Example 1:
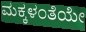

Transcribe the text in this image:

ಮಕ್ಕಳಂತೆಯೇ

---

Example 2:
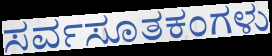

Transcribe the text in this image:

ಸರ್ವಸೂತಕಂಗಳು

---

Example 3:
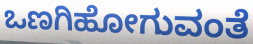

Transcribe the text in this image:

ಒಣಗಿಹೋಗುವಂತೆ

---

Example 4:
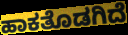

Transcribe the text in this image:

ಹಾಕತೊಡಗಿದೆ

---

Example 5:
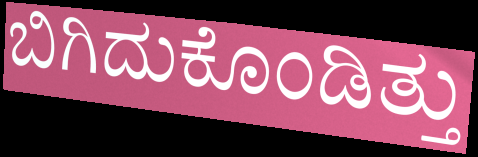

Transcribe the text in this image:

ಬಿಗಿದುಕೊಂಡಿತ್ತು